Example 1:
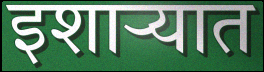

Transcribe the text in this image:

इशाऱ्यात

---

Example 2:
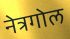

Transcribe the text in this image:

नेत्रगोल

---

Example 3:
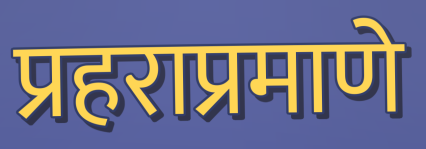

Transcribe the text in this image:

प्रहराप्रमाणे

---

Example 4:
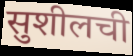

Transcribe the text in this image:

सुशीलची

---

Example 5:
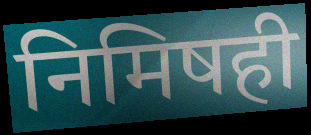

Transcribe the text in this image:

निमिषही